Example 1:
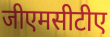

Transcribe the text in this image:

जीएमसीटीए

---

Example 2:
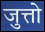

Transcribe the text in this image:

जुत्तो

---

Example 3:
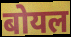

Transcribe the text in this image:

बोयल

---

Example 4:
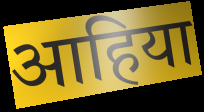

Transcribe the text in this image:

आहिया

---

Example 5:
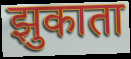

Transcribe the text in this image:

झुकाता